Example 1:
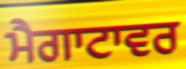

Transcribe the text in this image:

ਮੈਗਾਟਾਵਰ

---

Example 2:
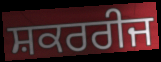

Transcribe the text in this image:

ਸ਼ਕਰਰੀਜ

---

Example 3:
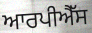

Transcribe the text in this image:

ਆਰਪੀਐੱਸ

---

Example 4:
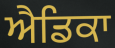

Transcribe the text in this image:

ਐਡਿਕਾ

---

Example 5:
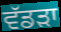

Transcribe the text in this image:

ਵੱਡਡ਼ਾ